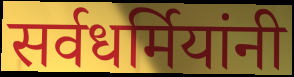
सर्वधर्मियांनी